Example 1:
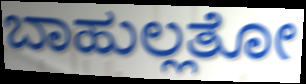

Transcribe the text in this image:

ಬಾಹುಲ್ಲತೋ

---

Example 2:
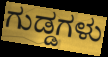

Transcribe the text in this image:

ಗುಡ್ಡಗಳು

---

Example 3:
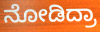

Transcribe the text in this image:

ನೋಡಿದ್ರಾ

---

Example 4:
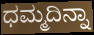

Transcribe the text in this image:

ಧಮ್ಮದಿನ್ನಾ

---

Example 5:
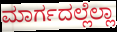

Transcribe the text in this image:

ಮಾರ್ಗದಲ್ಲೆಲ್ಲಾ